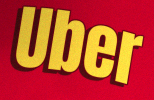
Uber